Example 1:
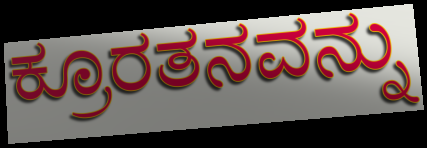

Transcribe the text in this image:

ಕ್ರೂರತನವನ್ನು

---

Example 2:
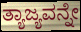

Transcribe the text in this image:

ತ್ಯಾಜ್ಯವನ್ನೇ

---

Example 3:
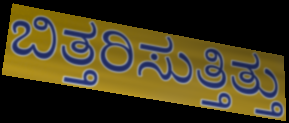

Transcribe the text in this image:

ಬಿತ್ತರಿಸುತ್ತಿತ್ತು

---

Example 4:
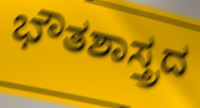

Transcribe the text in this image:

ಭೌತಶಾಸ್ತ್ರದ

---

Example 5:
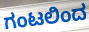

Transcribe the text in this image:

ಗಂಟಲಿಂದ